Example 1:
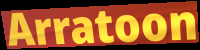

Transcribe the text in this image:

Arratoon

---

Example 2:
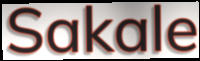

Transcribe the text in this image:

Sakale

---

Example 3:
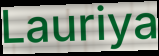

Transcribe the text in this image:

Lauriya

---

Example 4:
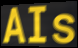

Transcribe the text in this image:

AIs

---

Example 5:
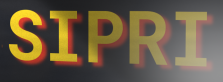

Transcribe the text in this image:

SIPRI